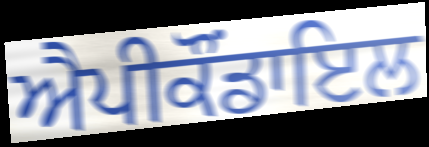
ਐਪੀਕੌਂਡਾਇਲ